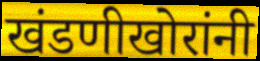
खंडणीखोरांनी